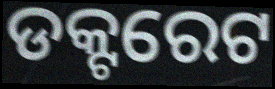
ଡକ୍ଟରେଟ